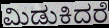
ಮಿಡುಕಿದರೆ